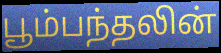
பூம்பந்தலின்